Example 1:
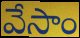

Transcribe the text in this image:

వేసాం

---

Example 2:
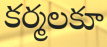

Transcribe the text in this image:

కర్మలకూ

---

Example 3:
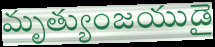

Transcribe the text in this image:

మృత్యుంజయుడై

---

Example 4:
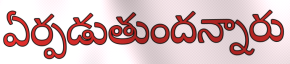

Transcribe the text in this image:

ఏర్పడుతుందన్నారు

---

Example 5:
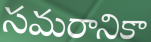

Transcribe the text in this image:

సమరానికా